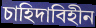
চাহিদাবিহীন